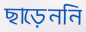
ছাড়েননি